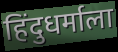
हिंदुधर्माला